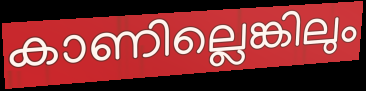
കാണില്ലെങ്കിലും